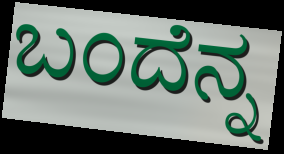
ಬಂದೆನ್ನ